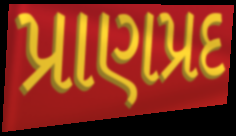
પ્રાણપ્રદ